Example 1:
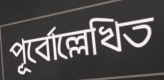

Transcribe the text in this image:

পূর্বোল্লেখিত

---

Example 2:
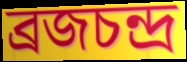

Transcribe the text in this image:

ব্রজচন্দ্র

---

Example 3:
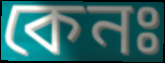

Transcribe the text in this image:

কেনঃ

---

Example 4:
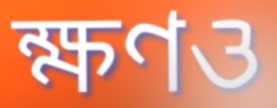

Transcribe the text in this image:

ক্ষণও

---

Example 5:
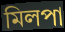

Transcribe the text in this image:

মিলপা